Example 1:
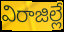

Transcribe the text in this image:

విరాజిల్లే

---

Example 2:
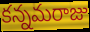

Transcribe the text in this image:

కన్నమరాజు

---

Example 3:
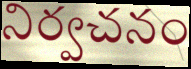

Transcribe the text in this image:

నిర్వచనం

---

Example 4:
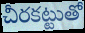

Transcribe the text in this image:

చీరకట్టుతో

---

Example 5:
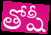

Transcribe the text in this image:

తోషీ